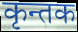
कृन्तक